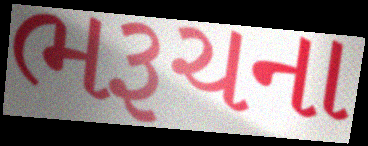
ભરૂચના